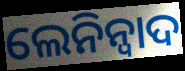
ଲେନିନ୍ବାଦ